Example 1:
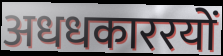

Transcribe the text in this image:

अधधकाररयों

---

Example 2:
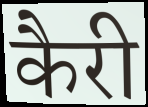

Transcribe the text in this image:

कैरी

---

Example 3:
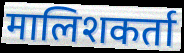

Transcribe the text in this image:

मालिशकर्ता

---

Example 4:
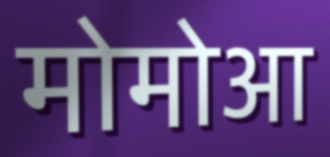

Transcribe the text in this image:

मोमोआ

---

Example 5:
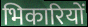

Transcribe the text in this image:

भिकारियों